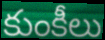
కుంకీలు